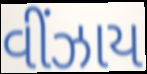
વીંઝાય